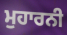
ਮੁਹਾਰਨੀ